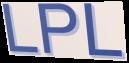
LPL